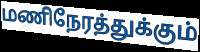
மணிநேரத்துக்கும்